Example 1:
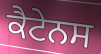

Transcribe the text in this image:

ਕੈਟੇਨਸ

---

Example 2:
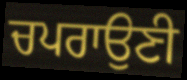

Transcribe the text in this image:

ਚਪਰਾਉਣੀ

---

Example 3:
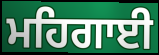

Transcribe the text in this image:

ਮਹਿਗਾਈ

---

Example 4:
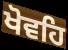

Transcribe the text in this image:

ਖੋਵਹਿ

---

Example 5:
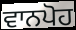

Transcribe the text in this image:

ਵਾਨਪੋਹ